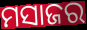
ମସାଜର